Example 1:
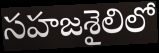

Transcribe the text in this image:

సహజశైలిలో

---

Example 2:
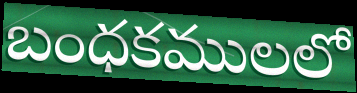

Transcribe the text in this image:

బంధకములలో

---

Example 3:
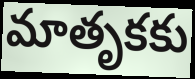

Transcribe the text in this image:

మాతృకకు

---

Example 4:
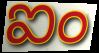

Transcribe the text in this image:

ఐం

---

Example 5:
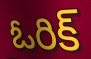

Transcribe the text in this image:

ఓరిక్